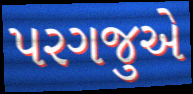
પરગજુએ